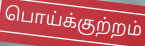
பொய்க்குற்றம்